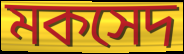
মকসেদ